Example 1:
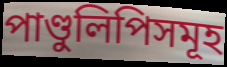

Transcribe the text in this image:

পাণ্ডুলিপিসমূহ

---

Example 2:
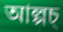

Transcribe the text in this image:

আল্পচ্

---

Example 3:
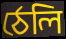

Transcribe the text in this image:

ঠেলি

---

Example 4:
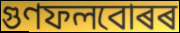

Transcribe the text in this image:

গুণফলবোৰৰ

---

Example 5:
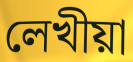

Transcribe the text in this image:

লেখীয়া